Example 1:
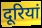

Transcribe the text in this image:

दूरियां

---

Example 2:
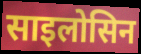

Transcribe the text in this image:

साइलोसिन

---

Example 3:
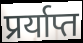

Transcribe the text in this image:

प्रर्याप्त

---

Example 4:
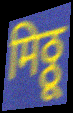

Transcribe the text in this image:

मिठ्ठू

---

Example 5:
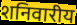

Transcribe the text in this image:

शनिवारीय